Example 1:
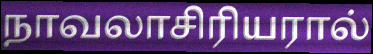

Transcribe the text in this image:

நாவலாசிரியரால்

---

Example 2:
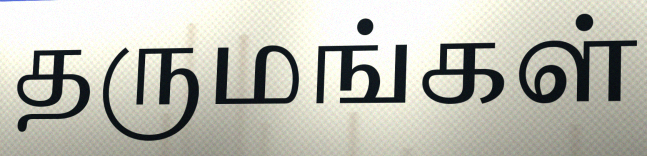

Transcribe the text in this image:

தருமங்கள்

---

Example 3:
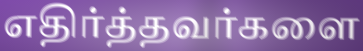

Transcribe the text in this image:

எதிர்த்தவர்களை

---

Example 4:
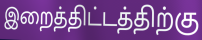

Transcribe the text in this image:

இறைத்திட்டத்திற்கு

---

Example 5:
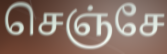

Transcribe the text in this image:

செஞ்சே